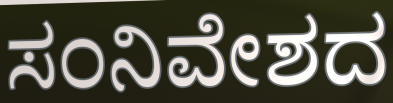
ಸಂನಿವೇಶದ